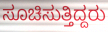
ಸೂಚಿಸುತ್ತಿದ್ದರು